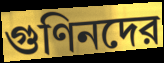
গুণিনদের